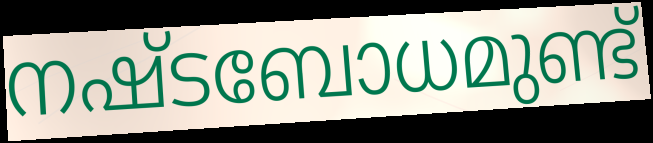
നഷ്ടബോധമുണ്ട്